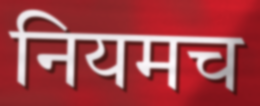
नियमच